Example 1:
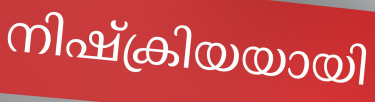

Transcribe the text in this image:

നിഷ്ക്രിയയായി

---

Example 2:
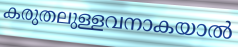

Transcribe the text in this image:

കരുതലുള്ളവനാകയാൽ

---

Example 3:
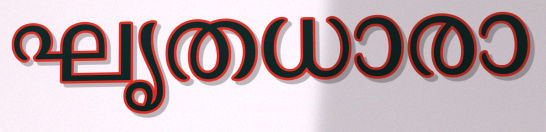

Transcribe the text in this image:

ഘൃതധാരാ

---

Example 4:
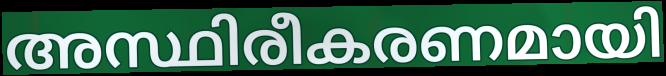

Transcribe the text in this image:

അസ്ഥിരീകരണമായി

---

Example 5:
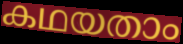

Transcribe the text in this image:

കഥയതാം